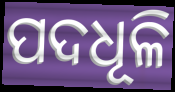
ପଦଧୂଳି